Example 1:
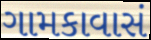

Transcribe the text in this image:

ગામકાવાસં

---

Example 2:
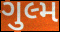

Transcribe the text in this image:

ગુલ્મ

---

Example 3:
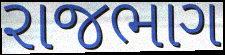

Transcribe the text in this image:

રાજભાગ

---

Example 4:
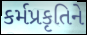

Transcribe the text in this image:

કર્મપ્રકૃતિને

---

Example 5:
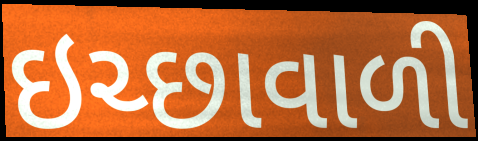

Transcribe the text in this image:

ઇચ્છાવાળી